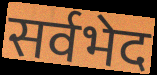
सर्वभेद